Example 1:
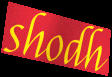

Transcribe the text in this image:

shodh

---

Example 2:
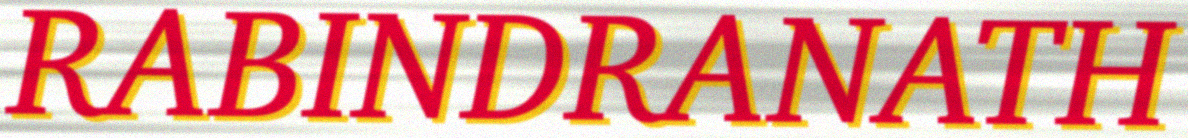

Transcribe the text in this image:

RABINDRANATH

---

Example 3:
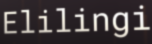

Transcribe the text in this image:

Elilingi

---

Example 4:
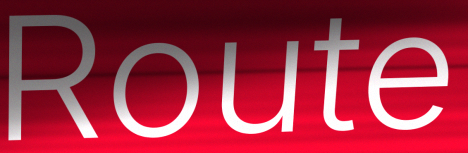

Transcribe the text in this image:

Route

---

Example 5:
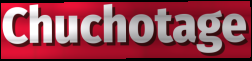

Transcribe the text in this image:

Chuchotage